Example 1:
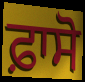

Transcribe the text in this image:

ਫ਼ਾਸੋ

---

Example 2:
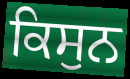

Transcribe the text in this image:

ਕਿਸੁਨ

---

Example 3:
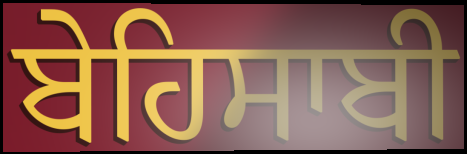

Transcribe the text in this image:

ਬੇਹਿਸਾਬੀ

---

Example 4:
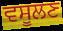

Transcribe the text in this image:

ਵਸੂਲਣ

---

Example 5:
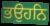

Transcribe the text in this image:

ਭਉਹਨਿ